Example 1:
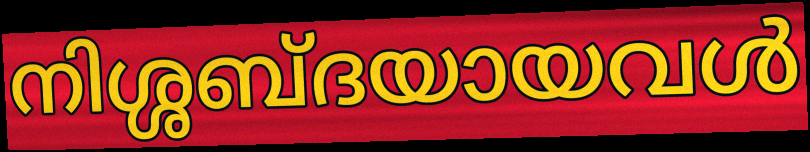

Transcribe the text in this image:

നിശ്ശബ്ദയായവൾ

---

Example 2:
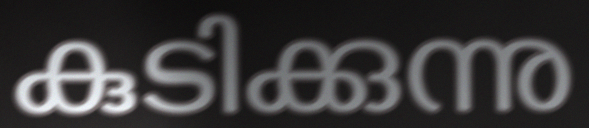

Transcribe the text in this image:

കുടിക്കുന്നു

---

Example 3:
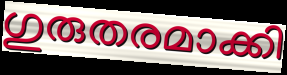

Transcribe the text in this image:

ഗുരുതരമാക്കി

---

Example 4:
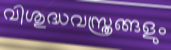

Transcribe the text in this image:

വിശുദ്ധവസ്ത്രങ്ങളും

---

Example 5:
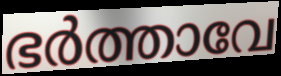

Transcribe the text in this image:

ഭർത്താവേ